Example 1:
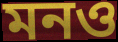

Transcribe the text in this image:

মনও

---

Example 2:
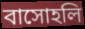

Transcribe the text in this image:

বাসোহলি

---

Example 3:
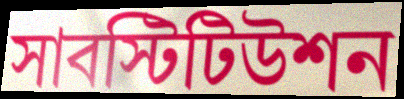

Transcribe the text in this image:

সাবস্টিটিউশন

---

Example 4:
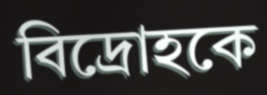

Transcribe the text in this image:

বিদ্রোহকে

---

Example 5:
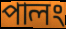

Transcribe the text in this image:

পালং